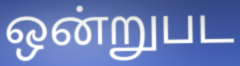
ஒன்றுபட